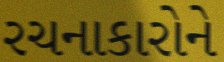
રચનાકારોને